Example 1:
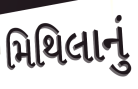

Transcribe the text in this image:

મિથિલાનું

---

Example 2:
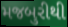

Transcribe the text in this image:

મજબુરીથી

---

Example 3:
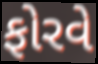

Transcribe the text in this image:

ફોરવે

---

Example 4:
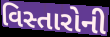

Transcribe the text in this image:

વિસ્તારોની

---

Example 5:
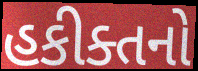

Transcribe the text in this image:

હકીક્તનો